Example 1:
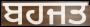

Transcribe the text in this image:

ਬਹਜਤ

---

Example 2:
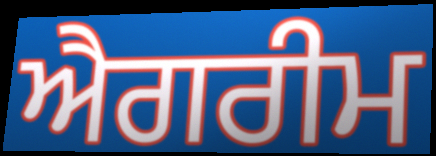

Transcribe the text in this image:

ਐਗਰੀਮ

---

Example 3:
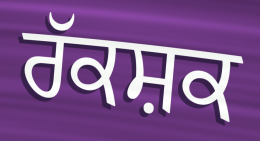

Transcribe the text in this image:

ਰੱਕਸ਼ਕ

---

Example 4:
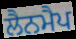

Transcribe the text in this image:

ਲੈਨਮੈਪ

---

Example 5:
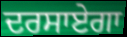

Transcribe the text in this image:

ਦਰਸਾਏਗਾ